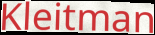
Kleitman